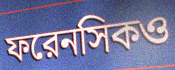
ফরেনসিকও